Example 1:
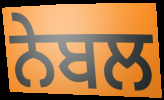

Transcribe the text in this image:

ਨੇਬਲ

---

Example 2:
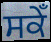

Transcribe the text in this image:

ਸਕੇਁ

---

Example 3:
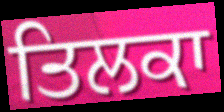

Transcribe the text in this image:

ਤਿਲਕਾ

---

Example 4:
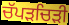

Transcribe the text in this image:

ਚੱਪੜਚਿੜੀ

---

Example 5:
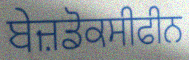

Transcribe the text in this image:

ਬੇਜ਼ਡੋਕਸੀਫੀਨ